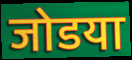
जोडया